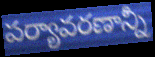
పర్యావరణాన్నీ